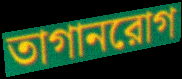
তাগানরোগ